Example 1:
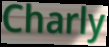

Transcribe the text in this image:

Charly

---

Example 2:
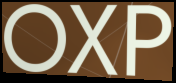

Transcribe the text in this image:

OXP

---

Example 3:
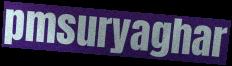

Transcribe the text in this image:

pmsuryaghar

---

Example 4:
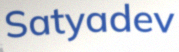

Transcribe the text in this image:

Satyadev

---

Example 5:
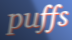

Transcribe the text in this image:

puffs